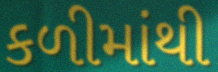
કળીમાંથી